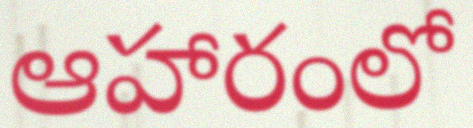
ఆహారంలో